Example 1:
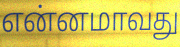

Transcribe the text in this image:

என்னமாவது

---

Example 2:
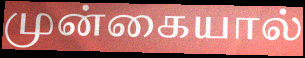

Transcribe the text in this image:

முன்கையால்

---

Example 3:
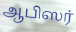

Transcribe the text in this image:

ஆபிஸர்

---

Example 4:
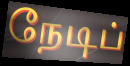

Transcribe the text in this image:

நேடிப்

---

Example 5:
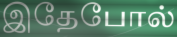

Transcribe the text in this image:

இதேபோல்